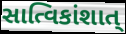
સાત્વિકાંશાત્